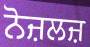
ਨੋਜ਼ਲਜ਼